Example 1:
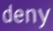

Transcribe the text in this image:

deny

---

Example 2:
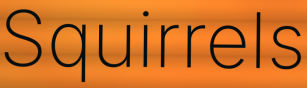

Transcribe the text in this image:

Squirrels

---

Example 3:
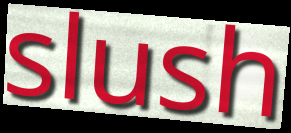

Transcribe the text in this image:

slush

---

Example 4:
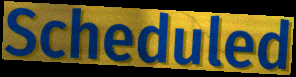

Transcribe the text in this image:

Scheduled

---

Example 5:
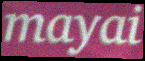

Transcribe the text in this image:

mayai